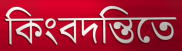
কিংবদন্তিতে